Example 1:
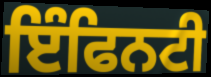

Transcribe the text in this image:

ਇੰਫਿਨਟੀ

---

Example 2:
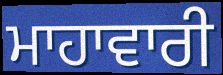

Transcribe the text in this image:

ਮਾਹਾਵਾਰੀ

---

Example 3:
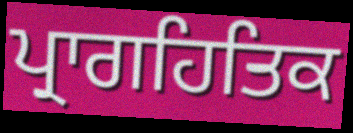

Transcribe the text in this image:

ਪ੍ਰਾਗਹਿਤਿਕ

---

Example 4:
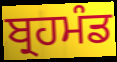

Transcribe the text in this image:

ਬ੍ਰਹਮੰਡ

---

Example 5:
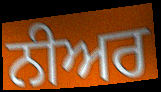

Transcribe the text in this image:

ਨੀਅਰ